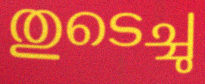
തുടെച്ചു